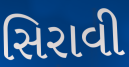
સિરાવી